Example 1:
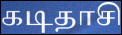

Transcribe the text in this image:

கடிதாசி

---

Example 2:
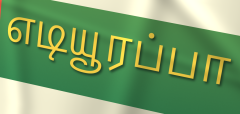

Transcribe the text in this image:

எடியூரப்பா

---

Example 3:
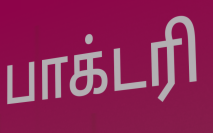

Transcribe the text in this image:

பாக்டரி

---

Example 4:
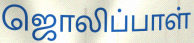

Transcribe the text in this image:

ஜொலிப்பாள்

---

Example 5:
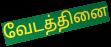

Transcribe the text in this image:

வேடத்தினை